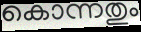
കൊന്നതും